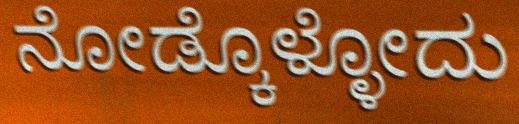
ನೋಡ್ಕೊಳ್ಳೋದು